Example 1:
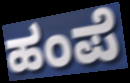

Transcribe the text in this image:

ಹಂಪೆ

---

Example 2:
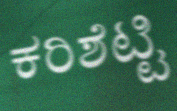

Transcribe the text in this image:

ಕರಿಶೆಟ್ಟಿ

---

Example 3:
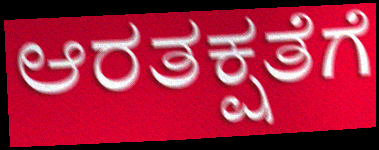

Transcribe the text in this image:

ಆರತಕ್ಷತೆಗೆ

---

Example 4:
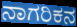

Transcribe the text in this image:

ನಾಗರಿಕನ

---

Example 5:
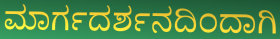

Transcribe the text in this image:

ಮಾರ್ಗದರ್ಶನದಿಂದಾಗಿ